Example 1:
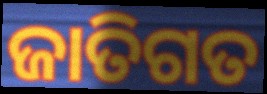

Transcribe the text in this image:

ଜାତିଗତ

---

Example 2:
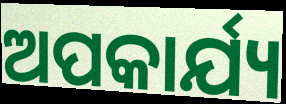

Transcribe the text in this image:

ଅପକାର୍ଯ୍ୟ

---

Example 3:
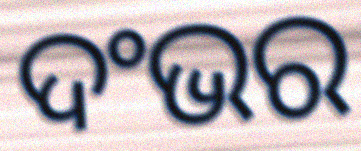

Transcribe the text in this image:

ଦଂଭର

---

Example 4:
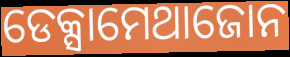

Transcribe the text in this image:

ଡେକ୍ସାମେଥାଜୋନ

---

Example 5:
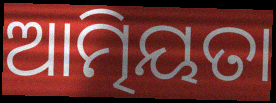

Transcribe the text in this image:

ଆତ୍ମିୟତା